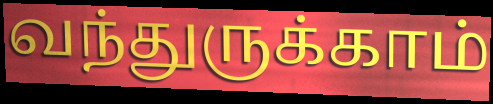
வந்துருக்காம்